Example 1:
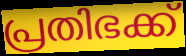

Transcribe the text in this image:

പ്രതിഭക്ക്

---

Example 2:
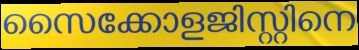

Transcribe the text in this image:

സൈക്കോളജിസ്റ്റിനെ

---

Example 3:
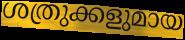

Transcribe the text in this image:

ശത്രുക്കളുമായ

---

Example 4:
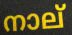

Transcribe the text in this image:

നാല്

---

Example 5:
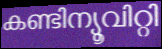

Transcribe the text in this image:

കണ്ടിന്യൂവിറ്റി